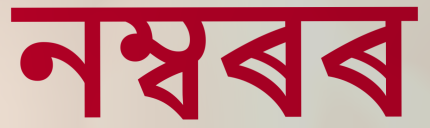
নম্বৰৰ